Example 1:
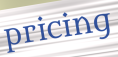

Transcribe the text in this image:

pricing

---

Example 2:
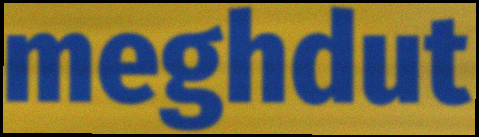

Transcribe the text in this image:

meghdut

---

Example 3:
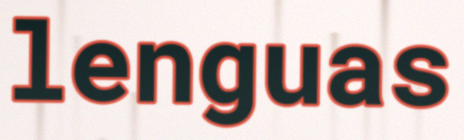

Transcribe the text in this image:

lenguas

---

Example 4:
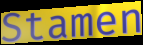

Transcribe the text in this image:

Stamen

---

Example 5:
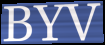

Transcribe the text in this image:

BYV